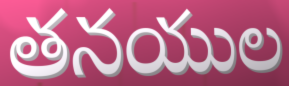
తనయుల